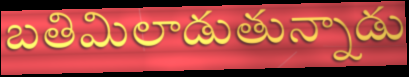
బతిమిలాడుతున్నాడు